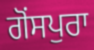
ਗੋਂਸਪੁਰਾ